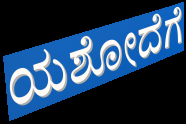
ಯಶೋದೆಗೆ